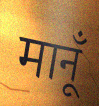
मानूँ